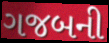
ગજબની